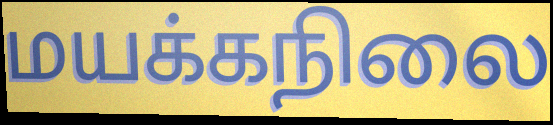
மயக்கநிலை